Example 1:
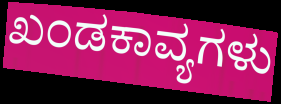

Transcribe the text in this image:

ಖಂಡಕಾವ್ಯಗಳು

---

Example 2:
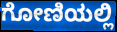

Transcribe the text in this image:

ಗೋಣಿಯಲ್ಲಿ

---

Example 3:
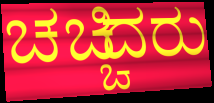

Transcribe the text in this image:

ಚಚ್ಚಿದರು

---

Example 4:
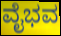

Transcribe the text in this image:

ವೈಭವ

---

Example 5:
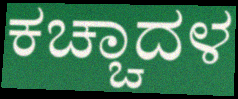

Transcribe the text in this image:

ಕಚ್ಚಾದಳ